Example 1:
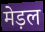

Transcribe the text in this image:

मेड़ल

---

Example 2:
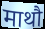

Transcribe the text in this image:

माथौ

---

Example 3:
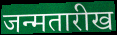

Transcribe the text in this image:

जन्मतारीख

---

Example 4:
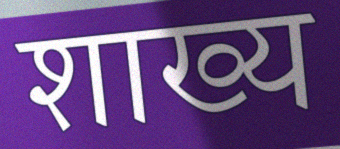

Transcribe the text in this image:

शाख्य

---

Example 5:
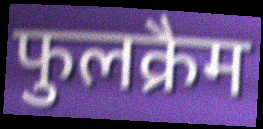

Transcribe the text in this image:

फुलक्रैम